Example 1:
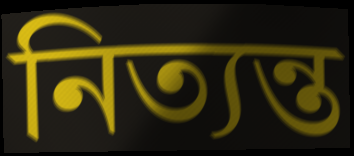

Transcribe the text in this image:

নিত্যন্ত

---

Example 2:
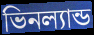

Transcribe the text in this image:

ভিনল্যান্ড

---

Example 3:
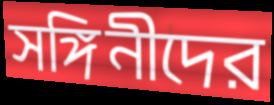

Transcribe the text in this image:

সঙ্গিনীদের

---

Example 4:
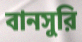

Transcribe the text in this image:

বানসুরি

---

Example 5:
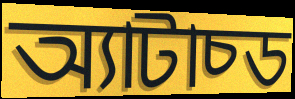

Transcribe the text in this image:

অ্যাটাচ্ড